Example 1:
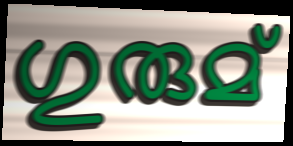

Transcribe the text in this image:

ഗുരുമ്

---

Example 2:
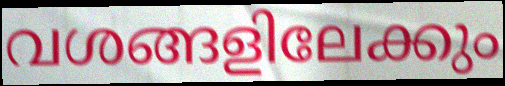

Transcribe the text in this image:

വശങ്ങളിലേക്കും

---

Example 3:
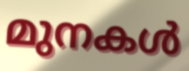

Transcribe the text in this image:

മുനകൾ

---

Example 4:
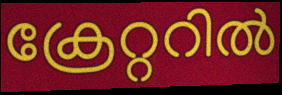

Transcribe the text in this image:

ക്രേറ്ററിൽ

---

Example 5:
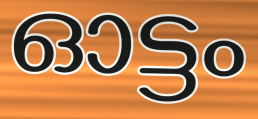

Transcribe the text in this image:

ഓട്ടം